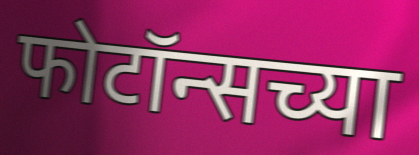
फोटॉन्सच्या